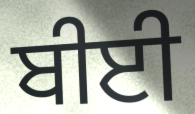
ਬੀਈ